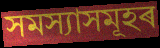
সমস্যাসমূহৰ